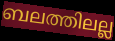
ബലത്തിലല്ല